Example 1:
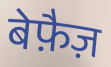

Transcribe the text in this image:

बेफ़ैज़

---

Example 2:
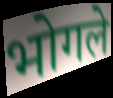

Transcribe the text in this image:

भोगले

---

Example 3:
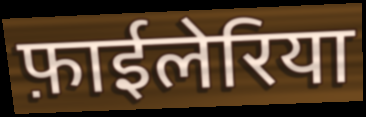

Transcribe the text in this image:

फ़ाईलेरिया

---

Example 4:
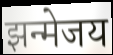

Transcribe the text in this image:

झन्मेजय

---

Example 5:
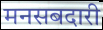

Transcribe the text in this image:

मनसबदारी